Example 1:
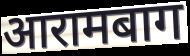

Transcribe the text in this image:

आरामबाग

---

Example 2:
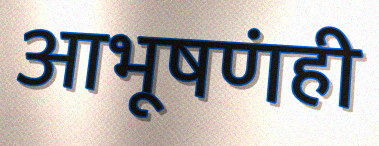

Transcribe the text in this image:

आभूषणंही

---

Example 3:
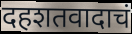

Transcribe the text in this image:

दहशतवादाचं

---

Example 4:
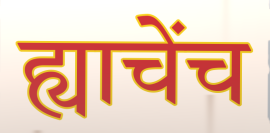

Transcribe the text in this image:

ह्याचेंच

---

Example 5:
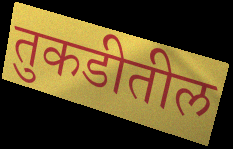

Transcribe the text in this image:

तुकडीतील